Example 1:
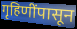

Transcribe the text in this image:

गृहिणींपासून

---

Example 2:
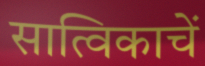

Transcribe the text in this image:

सात्विकाचें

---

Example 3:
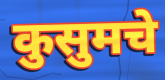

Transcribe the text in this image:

कुसुमचे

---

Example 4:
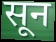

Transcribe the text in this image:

सून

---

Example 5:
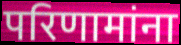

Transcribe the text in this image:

परिणामांना